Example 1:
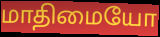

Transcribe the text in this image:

மாதிமையோ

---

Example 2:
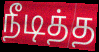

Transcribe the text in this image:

நீடித்த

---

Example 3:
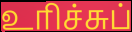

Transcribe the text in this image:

உரிச்சுப்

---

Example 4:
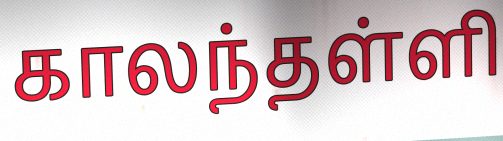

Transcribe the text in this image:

காலந்தள்ளி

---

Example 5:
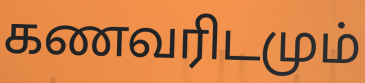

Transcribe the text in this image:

கணவரிடமும்